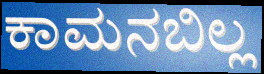
ಕಾಮನಬಿಲ್ಲ